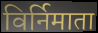
विर्निमाता